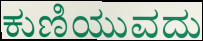
ಕುಣಿಯುವದು